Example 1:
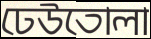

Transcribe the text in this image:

ঢেউতোলা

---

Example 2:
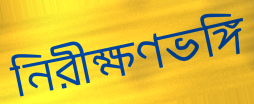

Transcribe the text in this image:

নিরীক্ষণভঙ্গি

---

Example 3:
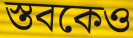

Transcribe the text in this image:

স্তবকেও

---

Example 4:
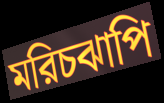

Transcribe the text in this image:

মরিচঝাপি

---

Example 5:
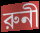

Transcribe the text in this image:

রুনী